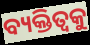
ବ୍ୟକ୍ତିତ୍ଵକୁ